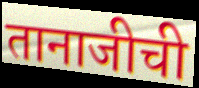
तानाजीची